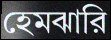
হেমঝারি